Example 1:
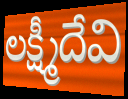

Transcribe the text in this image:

లక్ష్మీదేవి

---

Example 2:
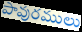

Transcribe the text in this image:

పావురములు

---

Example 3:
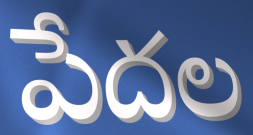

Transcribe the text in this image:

పేదల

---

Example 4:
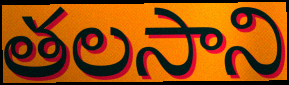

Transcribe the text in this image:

తలసాని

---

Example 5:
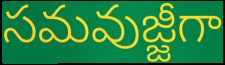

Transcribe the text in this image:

సమవుజ్జీగా